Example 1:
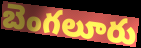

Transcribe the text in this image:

బెంగలూరు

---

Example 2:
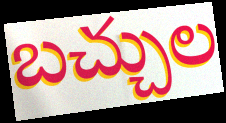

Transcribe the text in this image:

బచ్చుల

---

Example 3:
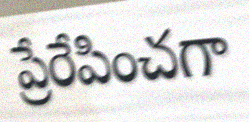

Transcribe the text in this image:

ప్రేరేపించగా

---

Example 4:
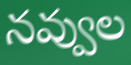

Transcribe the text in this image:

నవ్వుల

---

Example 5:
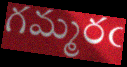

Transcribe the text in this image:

గమ్మరఁ